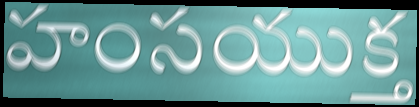
హంసయుక్త